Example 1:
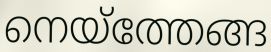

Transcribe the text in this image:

നെയ്ത്തേങ്ങ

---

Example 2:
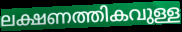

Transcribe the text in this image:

ലക്ഷണത്തികവുള്ള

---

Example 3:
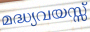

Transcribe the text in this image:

മദ്ധ്യവയസ്സ്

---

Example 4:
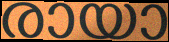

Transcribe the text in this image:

രായാ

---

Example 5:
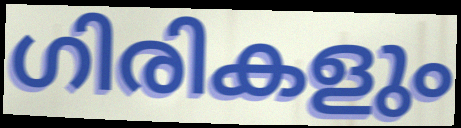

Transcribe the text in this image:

ഗിരികളും